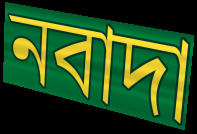
নবাদা